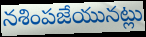
నశింపజేయునట్లు